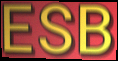
ESB